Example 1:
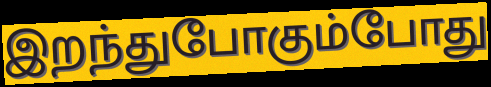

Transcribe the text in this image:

இறந்துபோகும்போது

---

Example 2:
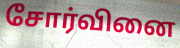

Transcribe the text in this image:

சோர்வினை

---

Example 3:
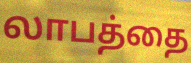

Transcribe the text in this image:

லாபத்தை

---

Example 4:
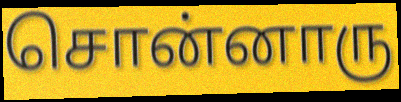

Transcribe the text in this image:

சொன்னாரு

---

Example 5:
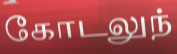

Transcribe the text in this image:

கோடலுந்